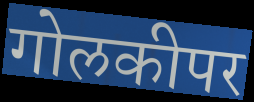
गोलकीपर